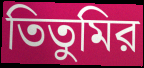
তিতুমির